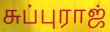
சுப்புராஜ்